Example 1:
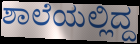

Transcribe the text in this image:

ಶಾಲೆಯಲ್ಲಿದ್ದ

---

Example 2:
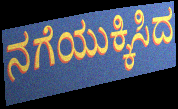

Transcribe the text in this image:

ನಗೆಯುಕ್ಕಿಸಿದ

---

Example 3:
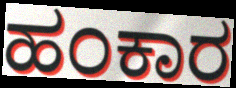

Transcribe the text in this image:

ಹಂಕಾರ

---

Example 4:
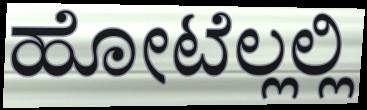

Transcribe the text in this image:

ಹೋಟೆಲ್ಲಲ್ಲಿ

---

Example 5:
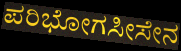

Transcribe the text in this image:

ಪರಿಭೋಗಸೀಸೇನ